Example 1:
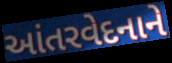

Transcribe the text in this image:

આંતરવેદનાને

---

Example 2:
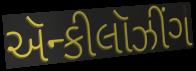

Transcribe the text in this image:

ઍન્કીલૉઝીંગ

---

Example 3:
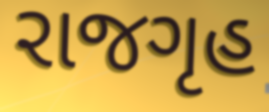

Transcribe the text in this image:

રાજગૃહ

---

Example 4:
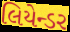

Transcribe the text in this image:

લિયેન્ડર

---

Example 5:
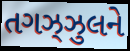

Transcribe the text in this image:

તગઝ્ઝુલને